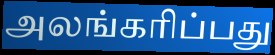
அலங்கரிப்பது